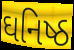
ઘનિષ્ઠ